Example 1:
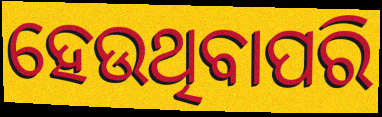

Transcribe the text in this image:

ହେଉଥିବାପରି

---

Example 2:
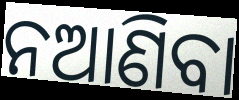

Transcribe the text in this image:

ନଆଣିବା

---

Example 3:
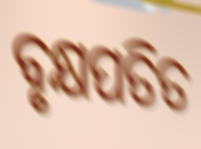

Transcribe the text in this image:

ବୃକ୍ଷପତିତ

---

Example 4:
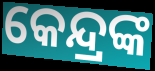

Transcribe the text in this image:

କେନ୍ଦ୍ରଙ୍କ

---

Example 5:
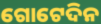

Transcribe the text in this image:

ଗୋଟେଦିନ